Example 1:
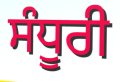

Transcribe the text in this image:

ਸੰਧੂਰੀ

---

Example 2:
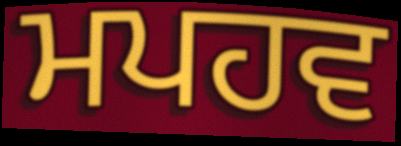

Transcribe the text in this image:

ਮਪਹਵ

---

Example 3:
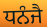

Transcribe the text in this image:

ਧਨੰਜੈ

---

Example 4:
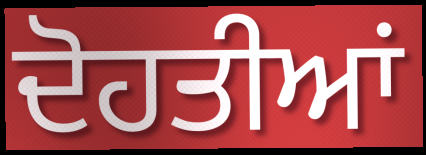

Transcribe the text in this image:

ਦੋਹਤੀਆਂ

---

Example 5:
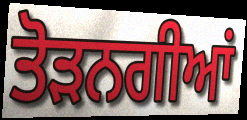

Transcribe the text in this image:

ਤੋੜਨਗੀਆਂ